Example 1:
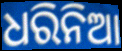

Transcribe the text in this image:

ଧରିନିଆ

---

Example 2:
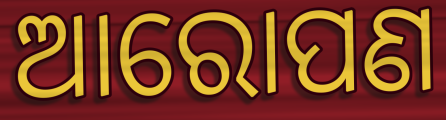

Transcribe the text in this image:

ଆରୋପଣ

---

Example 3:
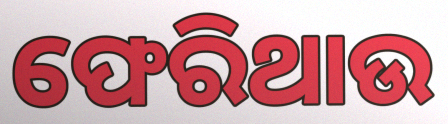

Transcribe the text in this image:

ଫେରିଥାଉ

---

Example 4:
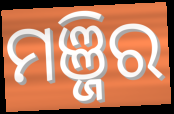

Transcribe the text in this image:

ମଞ୍ଜିର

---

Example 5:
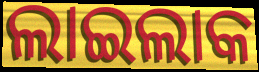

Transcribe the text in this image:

ଲାଇଲାକ